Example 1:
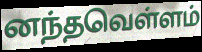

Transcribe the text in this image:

னந்தவெள்ளம்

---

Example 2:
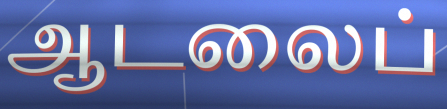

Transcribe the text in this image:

ஆடலைப்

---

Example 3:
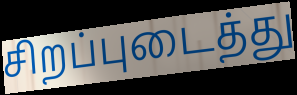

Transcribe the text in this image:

சிறப்புடைத்து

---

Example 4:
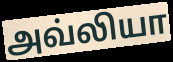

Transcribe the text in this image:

அவ்லியா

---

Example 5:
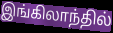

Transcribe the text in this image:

இங்கிலாந்தில்